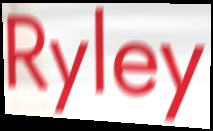
Ryley